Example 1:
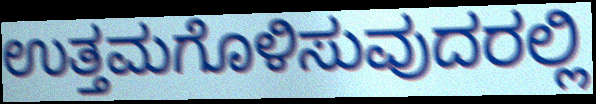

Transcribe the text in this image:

ಉತ್ತಮಗೊಳಿಸುವುದರಲ್ಲಿ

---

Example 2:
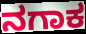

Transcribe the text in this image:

ನಗಾಕ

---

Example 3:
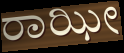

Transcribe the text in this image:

ರಾಝೀ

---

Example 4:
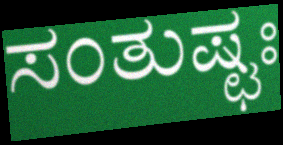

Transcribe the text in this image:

ಸಂತುಷ್ಟಃ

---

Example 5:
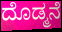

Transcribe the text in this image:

ದೊಡ್ಮನೆ